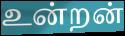
உன்றன்